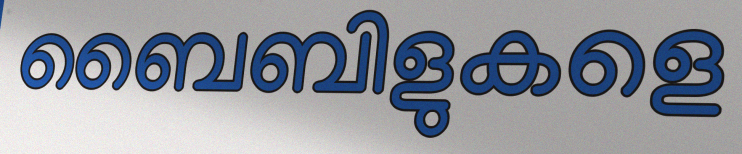
ബൈബിളുകളെ